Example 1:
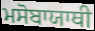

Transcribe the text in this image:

ਮਸੋਬਾਯਾਥੀ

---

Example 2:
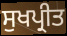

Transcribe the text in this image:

ਸੁਖਪ੍ਰੀਤ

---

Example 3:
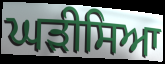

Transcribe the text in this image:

ਘੜੀਸਿਆ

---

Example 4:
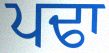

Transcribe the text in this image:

ਪਢਾ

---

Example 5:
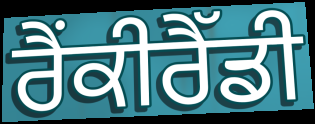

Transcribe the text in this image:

ਰੈਂਕੀਰੈੱਡੀ